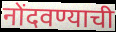
नोंदवण्याची